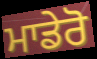
ਮਾਡੇਰੋ